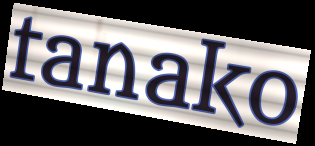
tanako